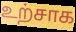
உற்சாக